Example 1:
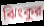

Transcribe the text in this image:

ঝিংকুর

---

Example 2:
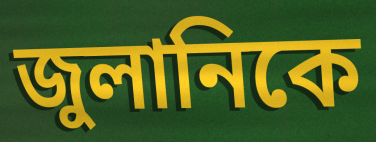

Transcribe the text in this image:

জুলানিকে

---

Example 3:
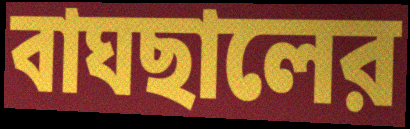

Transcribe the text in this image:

বাঘছালের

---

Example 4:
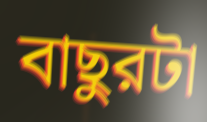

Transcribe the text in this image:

বাছুরটা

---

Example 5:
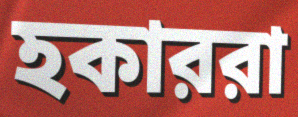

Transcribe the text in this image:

হকাররা